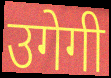
उगेगी